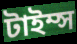
টাইম্স